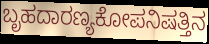
ಬೃಹದಾರಣ್ಯಕೋಪನಿಷತ್ತಿನ